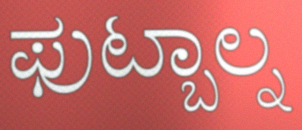
ಫುಟ್ಬಾಲ್ನ